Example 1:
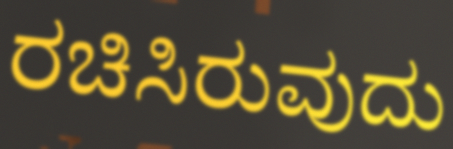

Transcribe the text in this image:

ರಚಿಸಿರುವುದು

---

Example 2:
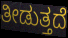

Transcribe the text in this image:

ತೀಡುತ್ತದೆ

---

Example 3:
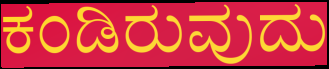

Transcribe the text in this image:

ಕಂಡಿರುವುದು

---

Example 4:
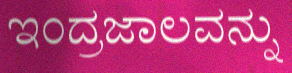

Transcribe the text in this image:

ಇಂದ್ರಜಾಲವನ್ನು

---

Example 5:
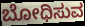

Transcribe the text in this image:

ಬೋಧಿಸುವ